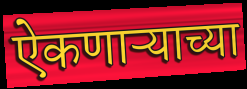
ऐकणाऱ्याच्या